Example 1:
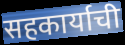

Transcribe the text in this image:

सहकार्याची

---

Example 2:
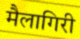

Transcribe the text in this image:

मैलागिरी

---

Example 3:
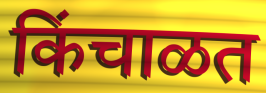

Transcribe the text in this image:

किंचाळत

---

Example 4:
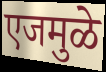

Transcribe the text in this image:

एजमुळे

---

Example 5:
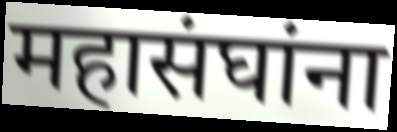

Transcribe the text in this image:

महासंघांना